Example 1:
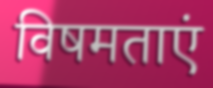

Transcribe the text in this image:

विषमताएं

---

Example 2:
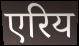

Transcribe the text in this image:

एरिय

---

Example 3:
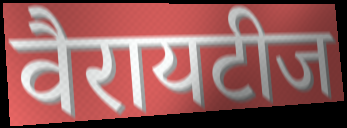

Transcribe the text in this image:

वैरायटीज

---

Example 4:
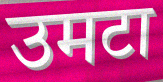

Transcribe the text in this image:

उमटा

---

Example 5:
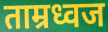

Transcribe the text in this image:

ताम्रध्वज